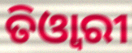
ତିଓ୍ଵାରୀ